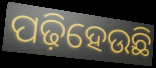
ପଢ଼ିହେଉଛି